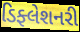
ડિફ્લેશનરી